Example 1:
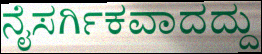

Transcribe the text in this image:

ನೈಸರ್ಗಿಕವಾದದ್ದು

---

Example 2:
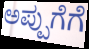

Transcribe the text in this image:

ಅಪ್ಪುಗೆಗೆ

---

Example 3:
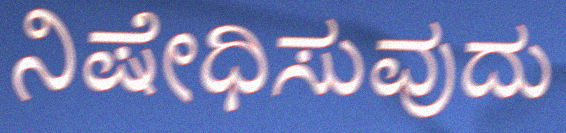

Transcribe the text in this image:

ನಿಷೇಧಿಸುವುದು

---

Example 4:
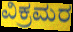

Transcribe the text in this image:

ವಿಕ್ರಮರ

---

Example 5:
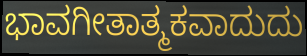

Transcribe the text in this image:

ಭಾವಗೀತಾತ್ಮಕವಾದುದು